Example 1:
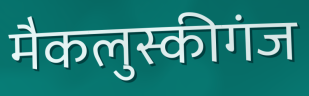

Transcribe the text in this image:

मैकलुस्कीगंज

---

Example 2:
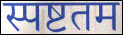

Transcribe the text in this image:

स्पष्टतम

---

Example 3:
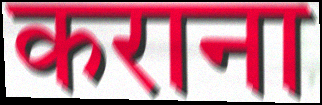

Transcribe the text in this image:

कराना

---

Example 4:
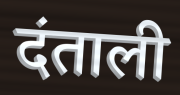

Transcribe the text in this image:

दंताली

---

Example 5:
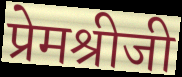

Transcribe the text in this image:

प्रेमश्रीजी